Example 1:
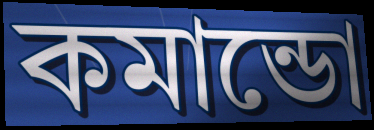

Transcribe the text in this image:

কমান্ডো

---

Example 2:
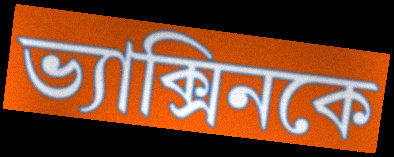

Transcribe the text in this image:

ভ্যাক্সিনকে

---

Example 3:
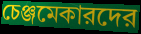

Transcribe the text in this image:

চেঞ্জমেকারদের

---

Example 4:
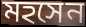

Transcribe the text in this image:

মহসেন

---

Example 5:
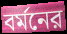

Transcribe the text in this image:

বর্মনের